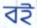
বই